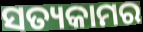
ସତ୍ୟକାମର